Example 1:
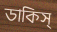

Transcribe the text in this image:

ডাকিস্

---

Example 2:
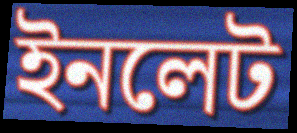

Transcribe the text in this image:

ইনলেট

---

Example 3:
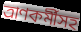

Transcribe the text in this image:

ত্রাণকর্মীসহ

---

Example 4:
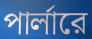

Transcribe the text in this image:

পার্লারে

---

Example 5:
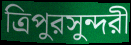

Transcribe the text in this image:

ত্রিপুরসুন্দরী